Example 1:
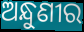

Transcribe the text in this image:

ଅନ୍ଧୁଣୀର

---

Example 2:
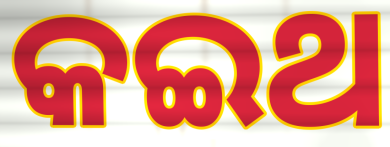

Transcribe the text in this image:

କଇଥ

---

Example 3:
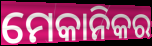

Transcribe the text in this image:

ମେକାନିକର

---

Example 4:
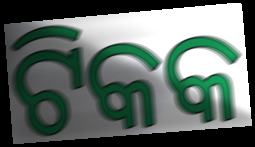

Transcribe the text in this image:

ଟିକକ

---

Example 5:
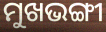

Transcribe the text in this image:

ମୁଖଭଙ୍ଗୀ